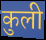
कुली